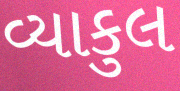
વ્યાકુલ